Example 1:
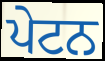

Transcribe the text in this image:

ਪੇਟਨ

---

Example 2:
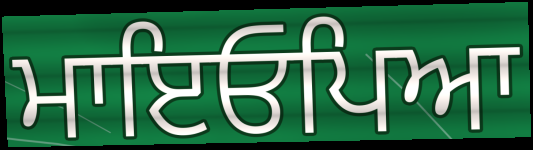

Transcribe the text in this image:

ਮਾਇਓਪਿਆ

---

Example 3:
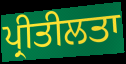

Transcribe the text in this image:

ਪ੍ਰੀਤੀਲਤਾ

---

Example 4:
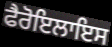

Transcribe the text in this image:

ਫੈਰੋਇਲਾਇਸ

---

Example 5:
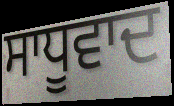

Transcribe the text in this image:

ਸਾਧੂਵਾਦ